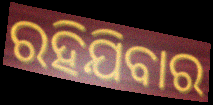
ରହିଯିବାର